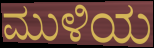
ಮುಳಿಯ